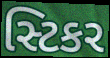
સ્ટિકર